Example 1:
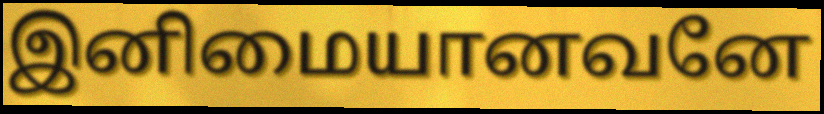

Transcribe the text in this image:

இனிமையானவனே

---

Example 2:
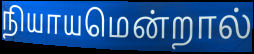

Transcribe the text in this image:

நியாயமென்றால்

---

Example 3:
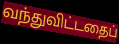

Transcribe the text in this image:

வந்துவிட்டதைப்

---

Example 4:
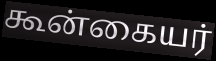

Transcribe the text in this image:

கூன்கையர்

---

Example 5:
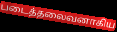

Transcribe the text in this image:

படைத்தலைவனாகிய